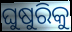
ଘୁଷୁରିକୁ